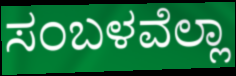
ಸಂಬಳವೆಲ್ಲಾ